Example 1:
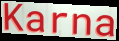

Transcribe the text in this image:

Karna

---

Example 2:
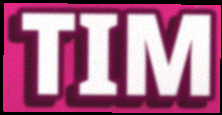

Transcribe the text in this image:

TIM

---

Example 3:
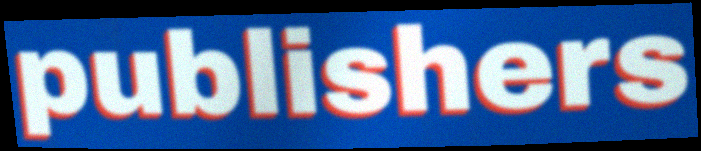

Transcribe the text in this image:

publishers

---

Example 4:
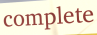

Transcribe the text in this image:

complete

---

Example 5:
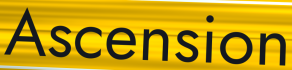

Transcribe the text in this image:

Ascension